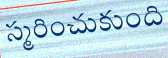
స్మరించుకుంది